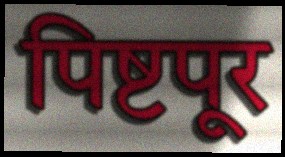
पिष्टपूर